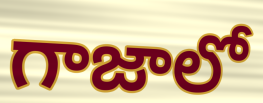
గాజాలో